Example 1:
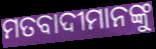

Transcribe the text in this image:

ମତବାଦୀମାନଙ୍କୁ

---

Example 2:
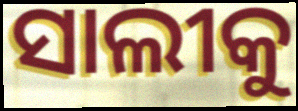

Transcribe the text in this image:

ସାଲୀକୁ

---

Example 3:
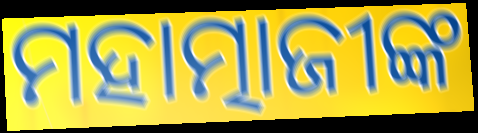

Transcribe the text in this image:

ମହାତ୍ମାଜୀଙ୍କ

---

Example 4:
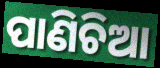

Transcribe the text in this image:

ପାଣିଚିଆ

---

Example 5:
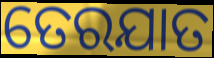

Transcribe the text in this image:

ତେରଯାତ